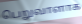
பெறுவாளாக